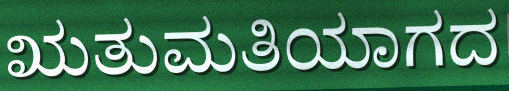
ಋತುಮತಿಯಾಗದ